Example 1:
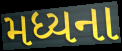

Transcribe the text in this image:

મધ્યના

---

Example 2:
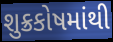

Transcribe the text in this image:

શુક્રકોષમાંથી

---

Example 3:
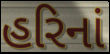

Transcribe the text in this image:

હરિનાં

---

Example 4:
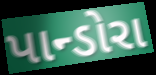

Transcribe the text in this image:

પાન્ડોરા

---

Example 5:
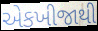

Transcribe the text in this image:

એકખીજાથી